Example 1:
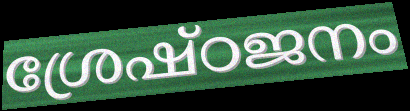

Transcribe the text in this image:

ശ്രേഷ്ഠജനം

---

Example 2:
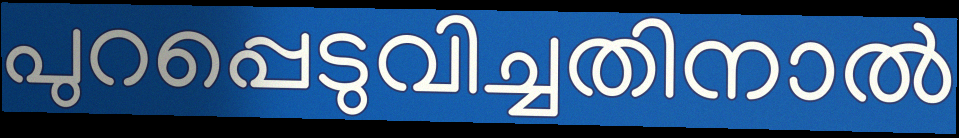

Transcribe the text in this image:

പുറപ്പെടുവിച്ചതിനാൽ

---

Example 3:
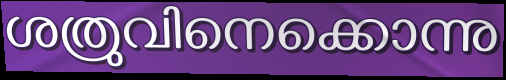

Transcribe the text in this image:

ശത്രുവിനെക്കൊന്നു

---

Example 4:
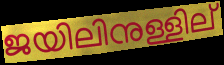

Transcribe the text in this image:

ജയിലിനുള്ളില്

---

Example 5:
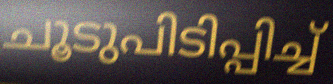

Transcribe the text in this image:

ചൂടുപിടിപ്പിച്ച്